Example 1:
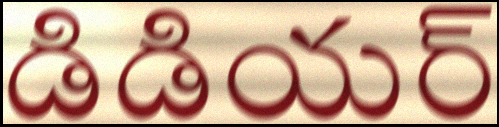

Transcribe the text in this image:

డిడియర్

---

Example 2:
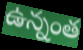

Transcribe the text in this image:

ఉన్నంత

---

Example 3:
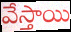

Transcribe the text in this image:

వేస్తాయి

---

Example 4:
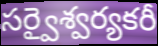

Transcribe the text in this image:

సర్వైశ్వర్యకరీ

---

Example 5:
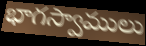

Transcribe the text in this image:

భాగస్వాములు